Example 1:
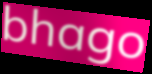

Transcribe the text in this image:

bhago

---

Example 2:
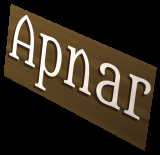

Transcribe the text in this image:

Apnar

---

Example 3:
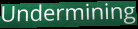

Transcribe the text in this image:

Undermining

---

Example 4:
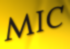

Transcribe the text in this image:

MIC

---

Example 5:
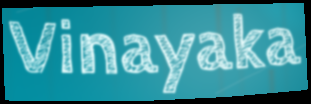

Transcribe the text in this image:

Vinayaka